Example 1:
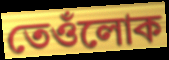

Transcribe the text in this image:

তেওঁলোক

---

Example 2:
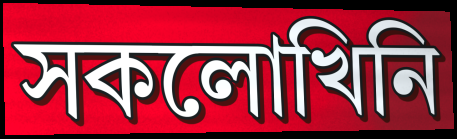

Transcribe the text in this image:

সকলোখিনি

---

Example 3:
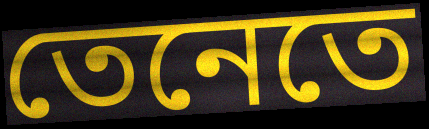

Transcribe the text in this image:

তেনেতে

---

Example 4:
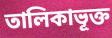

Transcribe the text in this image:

তালিকাভূক্ত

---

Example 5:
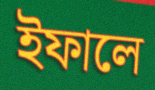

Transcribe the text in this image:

ইফালে